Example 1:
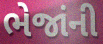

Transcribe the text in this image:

ભેજાંની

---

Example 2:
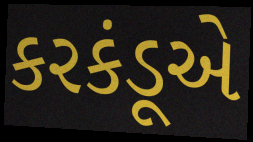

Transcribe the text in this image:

કરકંડૂએ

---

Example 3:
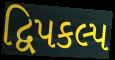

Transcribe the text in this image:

દ્વિપકલ્પ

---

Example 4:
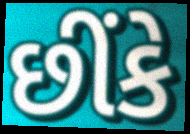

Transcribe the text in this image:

છીંકે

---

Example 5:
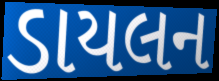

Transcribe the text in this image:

ડાયલન